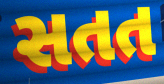
સતત